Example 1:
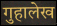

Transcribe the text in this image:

गुहालेख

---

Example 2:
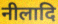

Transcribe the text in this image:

नीलादि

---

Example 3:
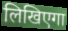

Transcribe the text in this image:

लिखिएगा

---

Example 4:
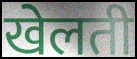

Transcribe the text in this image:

खेलती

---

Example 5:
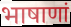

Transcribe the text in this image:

भाषाणां